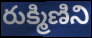
రుక్మిణిని